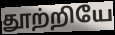
தூற்றியே